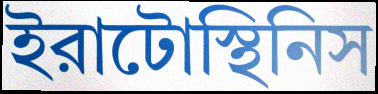
ইরাটোস্থিনিস